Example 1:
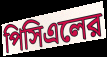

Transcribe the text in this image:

পিসিএলের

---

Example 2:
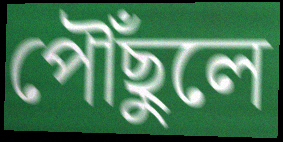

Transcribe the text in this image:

পৌঁছুলে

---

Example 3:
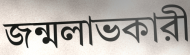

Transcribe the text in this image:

জন্মলাভকারী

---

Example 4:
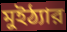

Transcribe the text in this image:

মুইঠ্যার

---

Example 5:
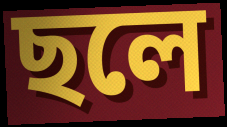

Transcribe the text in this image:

ছলে